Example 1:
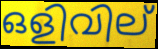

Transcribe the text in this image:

ഒളിവില്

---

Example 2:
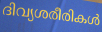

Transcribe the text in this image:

ദിവ്യശരീരികൾ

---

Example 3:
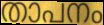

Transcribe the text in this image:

താപനം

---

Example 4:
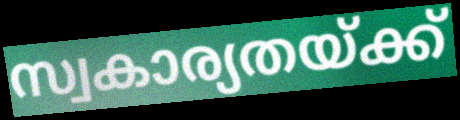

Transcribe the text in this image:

സ്വകാര്യതയ്ക്ക്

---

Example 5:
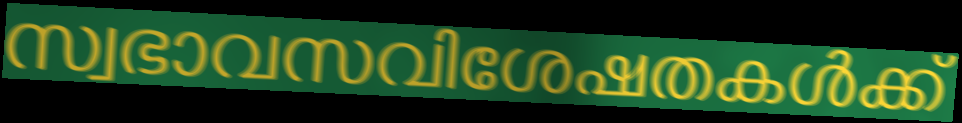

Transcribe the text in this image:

സ്വഭാവസവിശേഷതകൾക്ക്